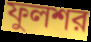
ফুলশর